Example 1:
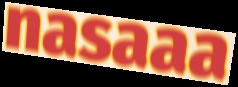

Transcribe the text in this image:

nasaaa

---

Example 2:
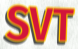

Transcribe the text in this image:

SVT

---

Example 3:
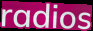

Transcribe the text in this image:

radios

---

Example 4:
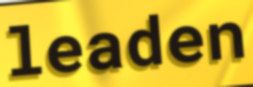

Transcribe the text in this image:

leaden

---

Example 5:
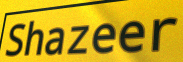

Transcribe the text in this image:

Shazeer